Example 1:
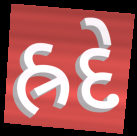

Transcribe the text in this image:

હ્રદે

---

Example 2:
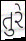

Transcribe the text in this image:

તુરે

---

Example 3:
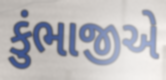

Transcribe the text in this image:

કુંભાજીએ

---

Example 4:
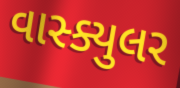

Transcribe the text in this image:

વાસ્ક્યુલર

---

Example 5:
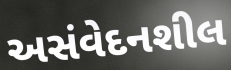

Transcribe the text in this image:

અસંવેદનશીલ